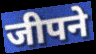
जीपने